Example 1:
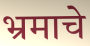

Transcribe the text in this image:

भ्रमाचे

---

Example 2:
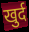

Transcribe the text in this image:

खुर्द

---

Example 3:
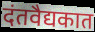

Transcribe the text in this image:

दंतवैद्यकात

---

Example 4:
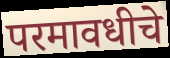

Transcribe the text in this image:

परमावधीचे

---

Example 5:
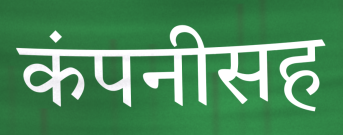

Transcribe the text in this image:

कंपनीसह